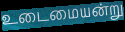
உடைமையன்று